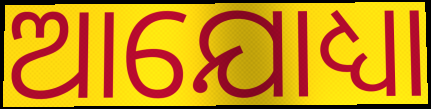
ଆଯୋଧ୍ୟା